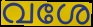
വശേ